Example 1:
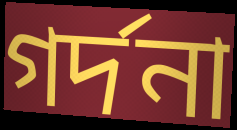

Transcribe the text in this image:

গর্দনা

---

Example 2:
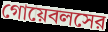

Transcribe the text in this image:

গোয়েবলসের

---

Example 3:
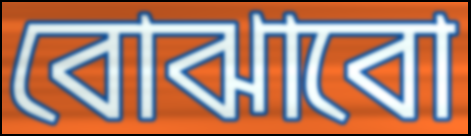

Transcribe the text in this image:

বোঝাবো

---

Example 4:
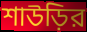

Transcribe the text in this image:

শাউড়ির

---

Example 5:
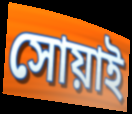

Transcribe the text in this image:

সোয়াই